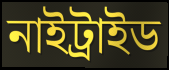
নাইট্রাইড